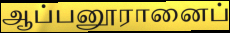
ஆப்பனூரானைப்